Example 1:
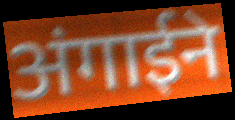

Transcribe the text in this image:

अंगाईने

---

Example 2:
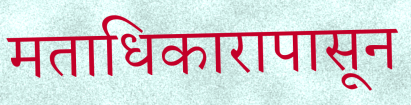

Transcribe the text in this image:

मताधिकारापासून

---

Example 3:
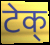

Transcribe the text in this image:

टेक्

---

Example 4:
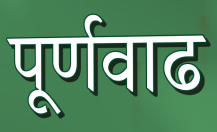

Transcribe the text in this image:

पूर्णवाढ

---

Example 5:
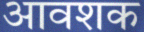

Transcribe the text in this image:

आवशक